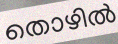
തൊഴിൽ